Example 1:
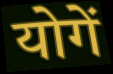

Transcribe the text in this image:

योगें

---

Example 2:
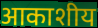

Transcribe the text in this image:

आकाशीय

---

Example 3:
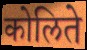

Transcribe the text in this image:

कोलिते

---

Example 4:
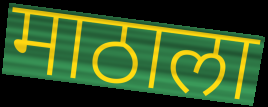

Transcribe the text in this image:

माठाला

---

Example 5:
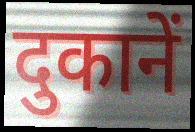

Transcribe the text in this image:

दुकानें